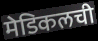
मेडिकलची